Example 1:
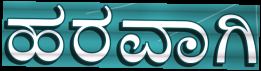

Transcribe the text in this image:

ಹರವಾಗಿ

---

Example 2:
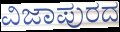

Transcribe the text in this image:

ವಿಜಾಪುರದ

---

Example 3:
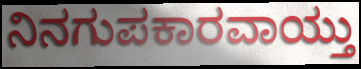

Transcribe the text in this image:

ನಿನಗುಪಕಾರವಾಯ್ತು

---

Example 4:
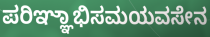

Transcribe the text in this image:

ಪರಿಞ್ಞಾಭಿಸಮಯವಸೇನ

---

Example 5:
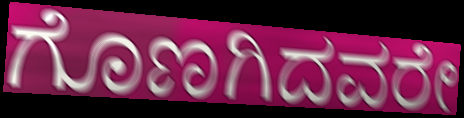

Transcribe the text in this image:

ಗೊಣಗಿದವರೇ